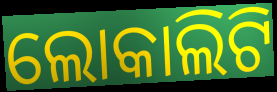
ଲୋକାଲିଟି